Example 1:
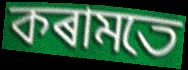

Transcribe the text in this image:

কৰামতে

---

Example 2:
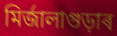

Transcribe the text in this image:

মিৰ্জালাগুড়াৰ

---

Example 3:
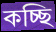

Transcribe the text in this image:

কচ্ছি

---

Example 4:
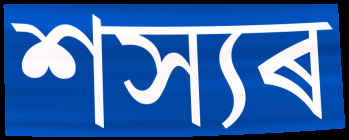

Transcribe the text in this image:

শস্যৰ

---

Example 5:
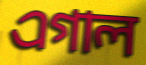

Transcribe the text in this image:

এগাল